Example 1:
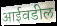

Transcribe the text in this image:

आईवडील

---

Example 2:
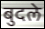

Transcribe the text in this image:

बुदले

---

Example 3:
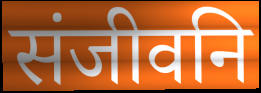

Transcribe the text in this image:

संजीवनि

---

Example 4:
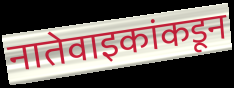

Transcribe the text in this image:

नातेवाइकांकडून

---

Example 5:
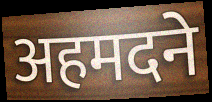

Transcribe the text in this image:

अहमदने